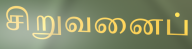
சிறுவனைப்